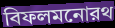
বিফলমনোরথ